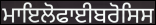
ਮਾਇਲੋਫਾਈਬਰੋਸਿਸ